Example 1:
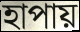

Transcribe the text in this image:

হাপায়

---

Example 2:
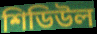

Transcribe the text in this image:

শিডিউল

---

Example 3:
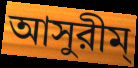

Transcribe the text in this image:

আসুরীম্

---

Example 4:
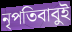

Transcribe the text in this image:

নৃপতিবাবুই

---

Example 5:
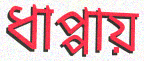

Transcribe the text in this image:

ধাপ্পায়